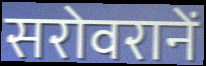
सरोवरानें